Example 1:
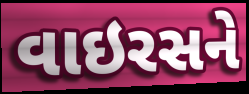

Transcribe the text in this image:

વાઇરસને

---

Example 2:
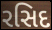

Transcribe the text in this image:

રસિદ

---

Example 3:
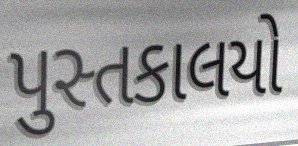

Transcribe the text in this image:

પુસ્તકાલયો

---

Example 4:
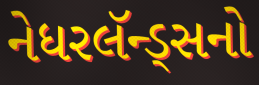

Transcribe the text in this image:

નેધરલૅન્ડ્સનો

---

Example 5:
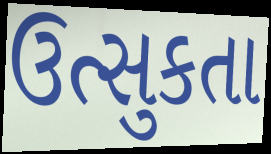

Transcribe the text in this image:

ઉત્સુકતા